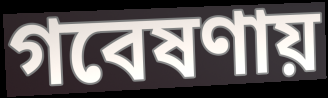
গবেষণায়